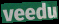
veedu